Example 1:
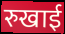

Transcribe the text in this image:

रुखाई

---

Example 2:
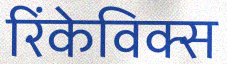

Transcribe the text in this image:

रिंकेविक्स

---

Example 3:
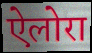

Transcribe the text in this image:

ऐलोरा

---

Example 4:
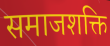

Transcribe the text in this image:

समाजशक्ति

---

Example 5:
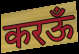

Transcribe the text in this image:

करऊँ